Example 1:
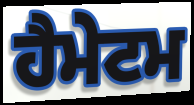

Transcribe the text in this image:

ਹੈਮੇਟਮ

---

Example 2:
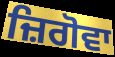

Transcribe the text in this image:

ਜ਼ਿਗੋਵਾ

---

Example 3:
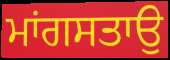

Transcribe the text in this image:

ਮਾਂਗਸਤਾਉ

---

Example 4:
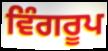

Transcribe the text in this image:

ਵਿੰਗਰੂਪ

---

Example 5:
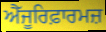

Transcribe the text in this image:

ਐੱਜੂਰਿਫ਼ਾਰਮਜ਼